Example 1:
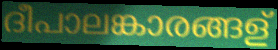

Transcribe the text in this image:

ദീപാലങ്കാരങ്ങള്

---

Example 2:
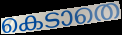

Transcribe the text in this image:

കെടാതെ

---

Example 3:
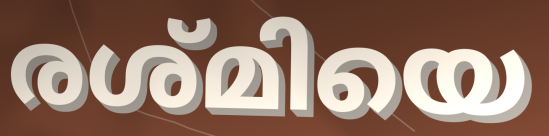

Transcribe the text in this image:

രശ്മിയെ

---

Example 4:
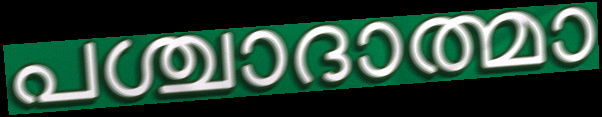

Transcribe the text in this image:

പശ്ചാദാത്മാ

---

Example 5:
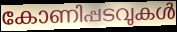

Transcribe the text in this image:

കോണിപ്പടവുകൾ